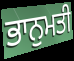
ਭਾਨੁਮਤੀ